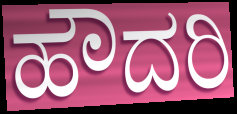
ಹೌದರಿ